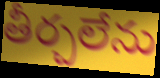
తీర్చలేను